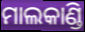
ମାଲକାଣ୍ଡି